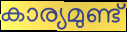
കാര്യമുണ്ട്